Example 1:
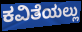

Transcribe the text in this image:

ಕವಿತೆಯಲ್ಲು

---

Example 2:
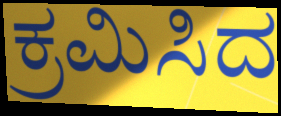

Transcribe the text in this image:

ಕ್ರಮಿಸಿದ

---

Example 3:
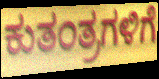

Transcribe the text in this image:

ಕುತಂತ್ರಗಳಿಗೆ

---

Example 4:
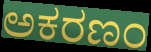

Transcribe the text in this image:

ಅಕರಣಂ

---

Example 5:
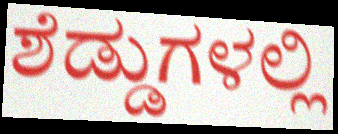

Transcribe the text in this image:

ಶೆಡ್ಡುಗಳಲ್ಲಿ